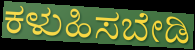
ಕಳುಹಿಸಬೇಡಿ